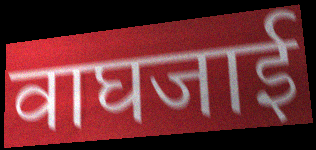
वाघजाई